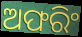
ଅଫରିଂ